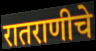
रातराणीचे